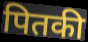
पितकी